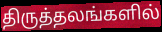
திருத்தலங்களில்